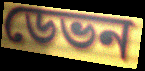
ডেভন